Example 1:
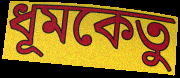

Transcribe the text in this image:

ধূমকেতু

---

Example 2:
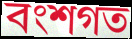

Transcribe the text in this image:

বংশগত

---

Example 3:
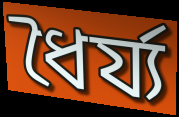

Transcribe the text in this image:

ধৈৰ্য্য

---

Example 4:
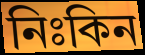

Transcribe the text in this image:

নিঃকিন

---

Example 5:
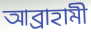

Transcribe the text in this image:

আব্ৰাহামী